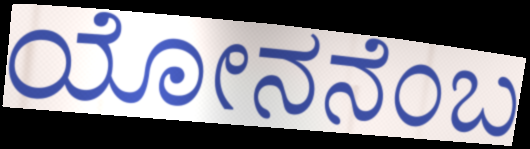
ಯೋನನೆಂಬ